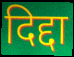
दिद्दा